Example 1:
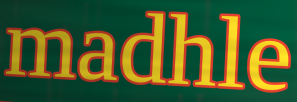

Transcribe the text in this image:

madhle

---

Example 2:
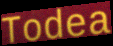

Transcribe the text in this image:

Todea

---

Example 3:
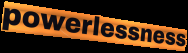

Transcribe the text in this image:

powerlessness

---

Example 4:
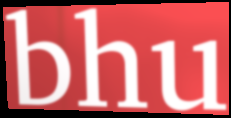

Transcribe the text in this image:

bhu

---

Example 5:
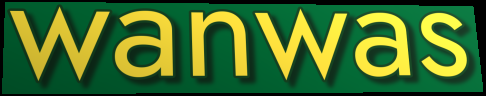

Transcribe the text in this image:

wanwas